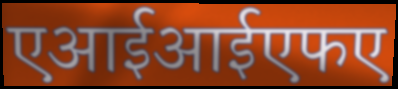
एआईआईएफए